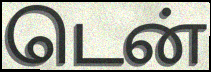
டென்